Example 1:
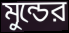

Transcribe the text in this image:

মুন্ডের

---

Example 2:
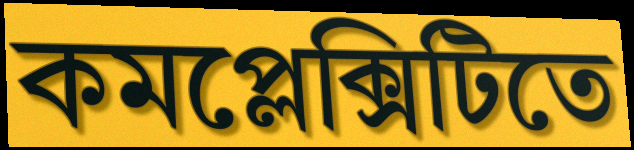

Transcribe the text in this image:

কমপ্লেক্সিটিতে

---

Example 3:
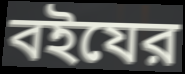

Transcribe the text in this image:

বইযের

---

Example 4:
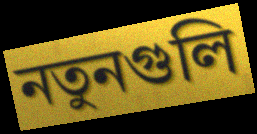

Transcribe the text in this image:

নতুনগুলি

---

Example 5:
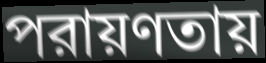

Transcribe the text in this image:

পরায়ণতায়